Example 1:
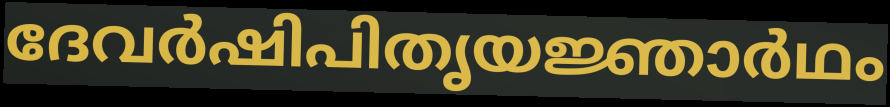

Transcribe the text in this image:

ദേവർഷിപിതൃയജ്ഞാർഥം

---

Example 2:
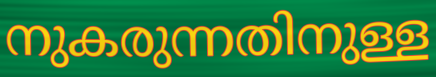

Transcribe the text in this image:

നുകരുന്നതിനുള്ള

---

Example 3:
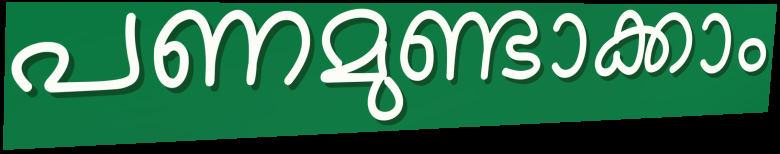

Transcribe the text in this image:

പണമുണ്ടാക്കാം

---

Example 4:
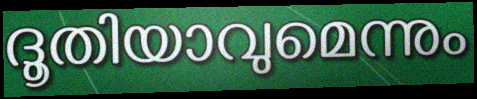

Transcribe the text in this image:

ദൂതിയാവുമെന്നും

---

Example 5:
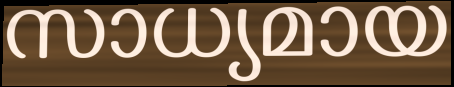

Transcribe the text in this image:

സാധ്യമായ